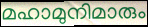
മഹാമുനിമാരും